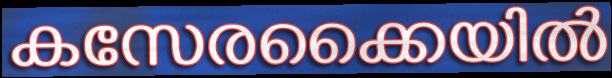
കസേരക്കൈയിൽ